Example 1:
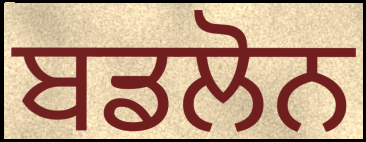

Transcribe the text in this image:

ਬਡਲੋਨ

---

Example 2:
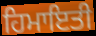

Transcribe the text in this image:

ਹਿਮਾਇਤੀ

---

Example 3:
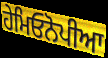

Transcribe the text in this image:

ਹੇਮਿਓਨੋਪੀਆ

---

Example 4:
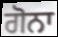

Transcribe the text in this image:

ਗੋਨਾ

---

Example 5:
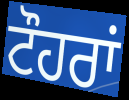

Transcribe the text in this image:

ਟੌਹਰਾਂ